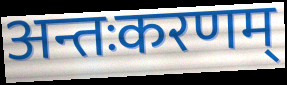
अन्तःकरणम्